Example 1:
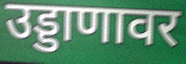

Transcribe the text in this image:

उड्डाणावर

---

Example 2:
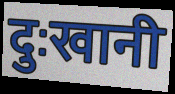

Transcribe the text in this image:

दुःखानी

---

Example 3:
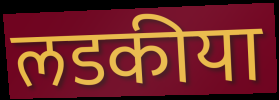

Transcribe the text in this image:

लडकीया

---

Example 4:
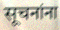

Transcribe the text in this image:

सूचनांना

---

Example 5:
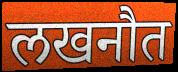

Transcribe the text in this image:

लखनौत